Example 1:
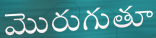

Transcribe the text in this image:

మొరుగుతూ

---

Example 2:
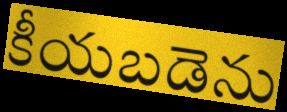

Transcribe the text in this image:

కీయబడెను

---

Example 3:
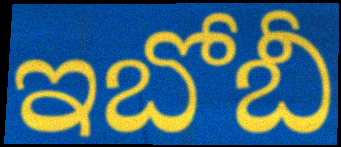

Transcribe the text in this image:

ఇబోబీ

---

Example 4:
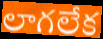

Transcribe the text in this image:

లాగలేక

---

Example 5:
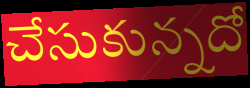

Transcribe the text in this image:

చేసుకున్నదో